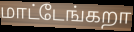
மாட்டேங்கறா